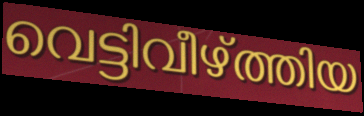
വെട്ടിവീഴ്ത്തിയ